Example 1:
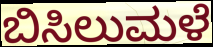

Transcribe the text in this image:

ಬಿಸಿಲುಮಳೆ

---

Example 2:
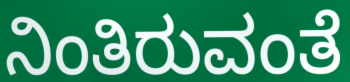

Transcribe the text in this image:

ನಿಂತಿರುವಂತೆ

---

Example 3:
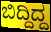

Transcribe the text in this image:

ಬಿದ್ದಿದ್ದ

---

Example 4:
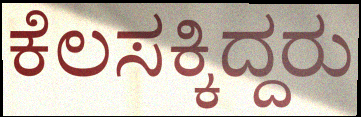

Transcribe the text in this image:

ಕೆಲಸಕ್ಕಿದ್ದರು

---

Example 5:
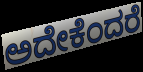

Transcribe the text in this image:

ಅದೇಕೆಂದರೆ